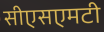
सीएसएमटी